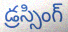
డ్రస్సింగ్